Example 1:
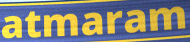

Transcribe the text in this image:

atmaram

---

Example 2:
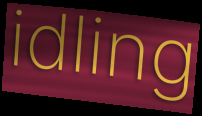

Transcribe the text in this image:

idling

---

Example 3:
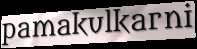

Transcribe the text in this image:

pamakulkarni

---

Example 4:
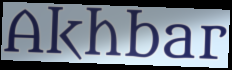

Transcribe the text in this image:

Akhbar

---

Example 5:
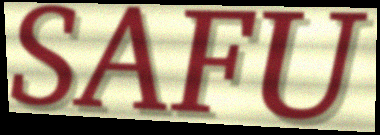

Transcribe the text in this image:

SAFU